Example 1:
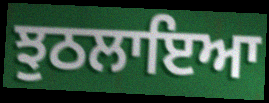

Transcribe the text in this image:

ਝੁਠਲਾਇਆ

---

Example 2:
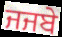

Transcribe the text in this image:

ਜਜਬੇ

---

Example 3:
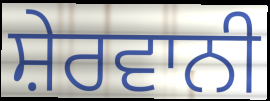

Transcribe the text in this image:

ਸ਼ੇਰਵਾਨੀ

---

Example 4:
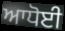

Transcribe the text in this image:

ਆਧੋਈ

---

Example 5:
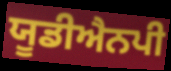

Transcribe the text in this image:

ਯੂਡੀਐਨਪੀ